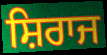
ਸ਼ਿਰਾਜ